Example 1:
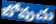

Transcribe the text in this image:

బోవుచు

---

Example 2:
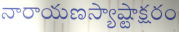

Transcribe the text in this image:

నారాయణస్యాష్టాక్షరం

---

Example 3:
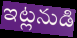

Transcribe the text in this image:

ఇట్లనుడి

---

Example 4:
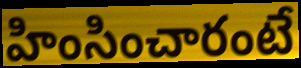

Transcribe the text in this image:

హింసించారంటే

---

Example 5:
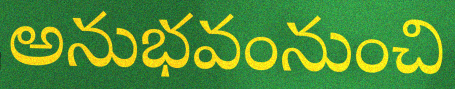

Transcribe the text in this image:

అనుభవంనుంచి